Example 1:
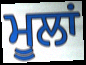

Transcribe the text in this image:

ਮੂਲਾਂ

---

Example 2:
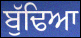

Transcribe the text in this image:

ਬੁੱਢਿਆ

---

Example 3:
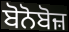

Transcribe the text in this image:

ਬੋਨੋਬੋਜ਼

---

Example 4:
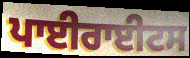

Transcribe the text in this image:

ਪਾਈਰਾਈਟਸ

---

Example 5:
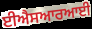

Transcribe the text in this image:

ਈਐਸਆਰਆਈ